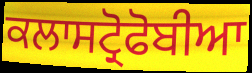
ਕਲਾਸਟ੍ਰੋਫੋਬੀਆ